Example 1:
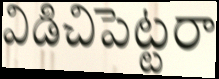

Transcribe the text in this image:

విడిచిపెట్టరా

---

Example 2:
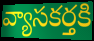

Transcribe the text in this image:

వ్యాసకర్తకి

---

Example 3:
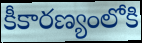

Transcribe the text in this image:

కీకారణ్యంలోకి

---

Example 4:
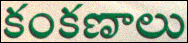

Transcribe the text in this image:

కంకణాలు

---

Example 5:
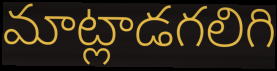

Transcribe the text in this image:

మాట్లాడగలిగి